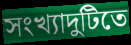
সংখ্যাদুটিতে